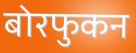
बोरफुकन